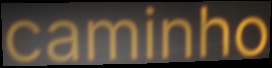
caminho